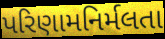
પરિણામનિર્મલતા